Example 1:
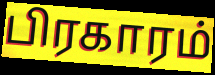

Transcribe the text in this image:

பிரகாரம்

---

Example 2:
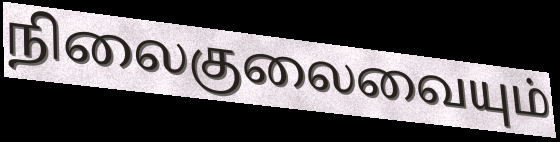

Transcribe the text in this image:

நிலைகுலைவையும்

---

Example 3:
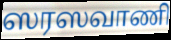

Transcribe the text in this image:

ஸரஸவாணி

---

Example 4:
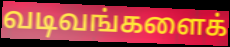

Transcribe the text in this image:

வடிவங்களைக்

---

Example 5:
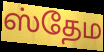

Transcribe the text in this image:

ஸ்தேம